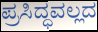
ಪ್ರಸಿದ್ಧವಲ್ಲದ